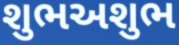
શુભઅશુભ